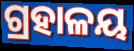
ଗ୍ରହାଳୟ